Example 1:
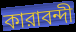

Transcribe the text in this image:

কারাবন্দী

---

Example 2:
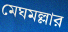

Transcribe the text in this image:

মেঘমল্লার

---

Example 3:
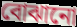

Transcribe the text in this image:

বোঝানো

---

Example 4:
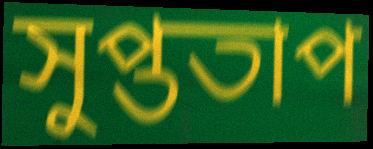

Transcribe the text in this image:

সুপ্ততাপ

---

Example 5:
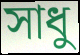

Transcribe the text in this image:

সাধু